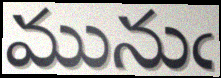
మునుఁ